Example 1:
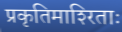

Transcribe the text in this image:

प्रकृतिमाश्रिताः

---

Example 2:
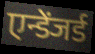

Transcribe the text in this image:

एन्डेंजर्ड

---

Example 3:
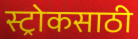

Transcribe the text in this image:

स्ट्रोकसाठी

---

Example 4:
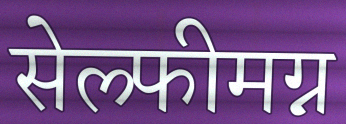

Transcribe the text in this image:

सेल्फीमग्न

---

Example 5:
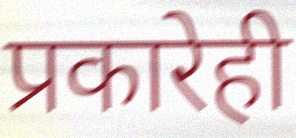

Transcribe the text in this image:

प्रकारेही